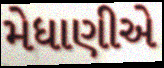
મેધાણીએ